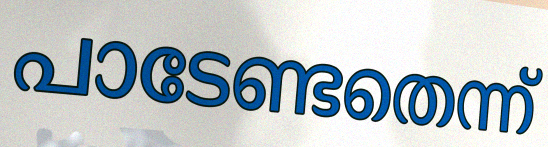
പാടേണ്ടതെന്ന്